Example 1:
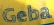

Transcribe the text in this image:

Geba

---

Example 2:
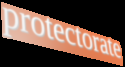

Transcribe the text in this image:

protectorate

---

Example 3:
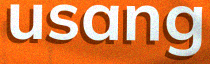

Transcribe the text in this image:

usang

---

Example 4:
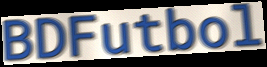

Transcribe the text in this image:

BDFutbol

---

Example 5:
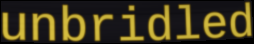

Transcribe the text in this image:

unbridled